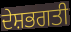
ਦੇਸ਼ਭਗਤੀ